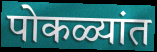
पोकळ्यांत